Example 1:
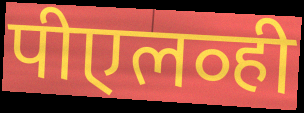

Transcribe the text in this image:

पीएलव्ही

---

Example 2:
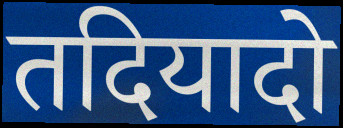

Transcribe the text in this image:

तदियादो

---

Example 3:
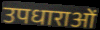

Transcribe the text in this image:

उपधाराओं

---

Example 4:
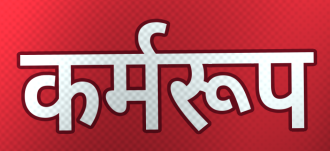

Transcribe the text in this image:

कर्मरूप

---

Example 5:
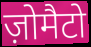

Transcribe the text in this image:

ज़ोमैटो